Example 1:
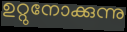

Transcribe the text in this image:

ഉറ്റുനോക്കുന്നു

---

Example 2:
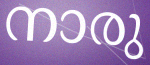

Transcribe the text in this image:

നാരു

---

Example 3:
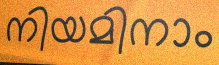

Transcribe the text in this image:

നിയമിനാം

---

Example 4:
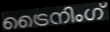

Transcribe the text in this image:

ട്രൈനിംഗ്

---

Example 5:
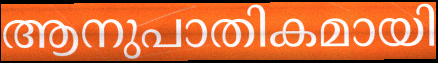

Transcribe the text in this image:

ആനുപാതികമായി